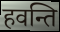
हवन्ति